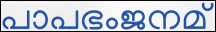
പാപഭംജനമ്